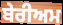
ਬੇਰੀਅਮ